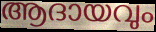
ആദായവും